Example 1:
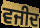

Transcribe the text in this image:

ਵਜੀਦ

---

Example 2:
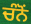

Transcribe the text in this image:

ਚੰਨੋਂ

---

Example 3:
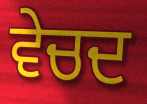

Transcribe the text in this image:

ਵੇਚਦ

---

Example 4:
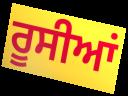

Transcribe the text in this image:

ਰੂਸੀਆਂ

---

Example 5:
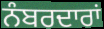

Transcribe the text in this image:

ਨੰਬਰਦਾਰਾਂ